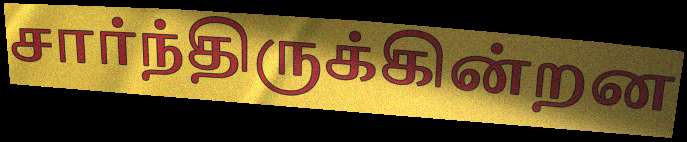
சார்ந்திருக்கின்றன